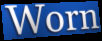
Worn